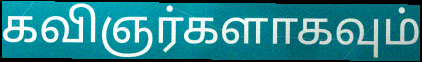
கவிஞர்களாகவும்